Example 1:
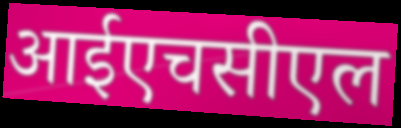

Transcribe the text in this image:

आईएचसीएल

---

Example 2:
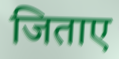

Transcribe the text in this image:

जिताए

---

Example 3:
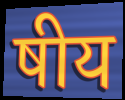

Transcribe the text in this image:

षीय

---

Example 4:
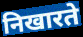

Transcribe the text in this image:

निखारते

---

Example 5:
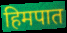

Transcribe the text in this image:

हिमपात